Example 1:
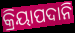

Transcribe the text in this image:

କ୍ରିୟାପଦାନି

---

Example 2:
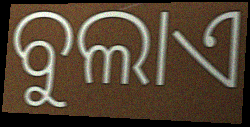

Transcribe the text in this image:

ବୁଲାଏ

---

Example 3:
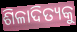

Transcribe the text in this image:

ଶିଳାଦିତ୍ୟକୁ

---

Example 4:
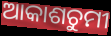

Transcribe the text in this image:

ଆକାଶଚୁମୀ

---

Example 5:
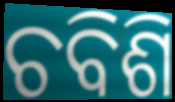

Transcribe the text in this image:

ଚବିଶି